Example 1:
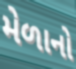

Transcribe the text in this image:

મેળાનો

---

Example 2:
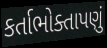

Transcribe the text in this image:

કર્તાભોક્તાપણું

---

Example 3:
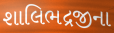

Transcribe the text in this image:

શાલિભદ્રજીના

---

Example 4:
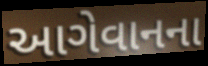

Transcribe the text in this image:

આગેવાનના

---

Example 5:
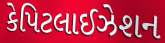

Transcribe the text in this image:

કેપિટલાઈઝેશન